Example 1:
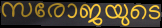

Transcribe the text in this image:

സരോജയുടെ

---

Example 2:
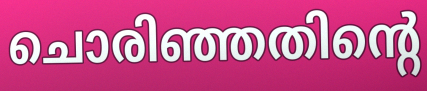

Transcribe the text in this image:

ചൊരിഞ്ഞതിന്റെ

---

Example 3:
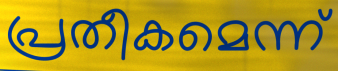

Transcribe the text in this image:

പ്രതീകമെന്ന്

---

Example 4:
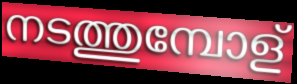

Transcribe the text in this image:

നടത്തുമ്പോള്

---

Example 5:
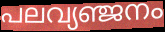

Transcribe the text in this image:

പലവ്യഞ്ജനം